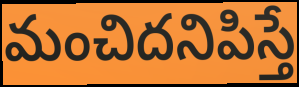
మంచిదనిపిస్తే